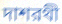
দাশরথী